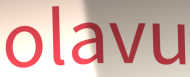
olavu